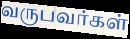
வருபவர்கள்